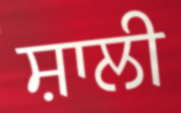
ਸ਼ਾਲੀ